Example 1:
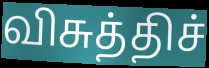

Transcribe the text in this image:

விசுத்திச்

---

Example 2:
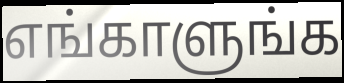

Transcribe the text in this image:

எங்காளுங்க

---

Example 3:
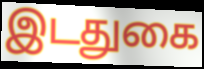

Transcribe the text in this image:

இடதுகை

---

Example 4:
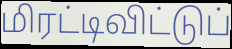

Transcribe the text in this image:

மிரட்டிவிட்டுப்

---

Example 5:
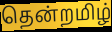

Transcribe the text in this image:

தென்றமிழ்